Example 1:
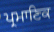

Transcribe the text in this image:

ਪ੍ਰਮਾਣਿਕ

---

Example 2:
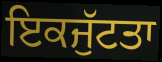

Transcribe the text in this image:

ਇਕਜੁੱਟਤਾ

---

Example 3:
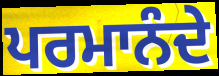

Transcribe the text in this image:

ਪਰਮਾਨੰਦੇ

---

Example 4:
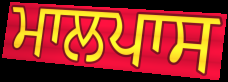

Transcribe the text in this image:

ਮਾਲਪਾਸ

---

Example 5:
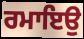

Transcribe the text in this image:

ਰਮਾਇਉ